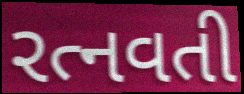
રત્નવતી